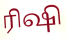
ரிஷி